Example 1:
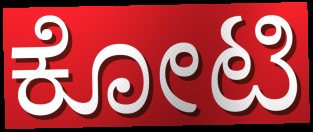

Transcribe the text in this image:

ಕೋಟಿ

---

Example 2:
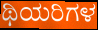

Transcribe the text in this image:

ಥಿಯರಿಗಳ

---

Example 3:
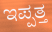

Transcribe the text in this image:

ಇಪ್ಪತ್ತ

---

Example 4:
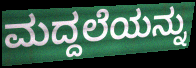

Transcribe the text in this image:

ಮದ್ದಲೆಯನ್ನು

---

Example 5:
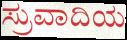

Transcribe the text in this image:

ಸ್ರುವಾದಿಯ